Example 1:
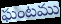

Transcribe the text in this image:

ఘంటము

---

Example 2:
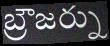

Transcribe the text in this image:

బ్రౌజర్ను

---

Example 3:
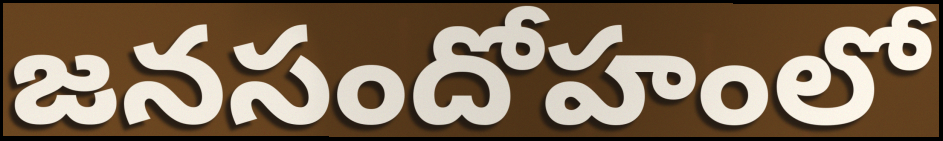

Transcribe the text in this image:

జనసందోహంలో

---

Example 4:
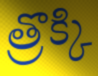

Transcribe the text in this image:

త్రొక్కి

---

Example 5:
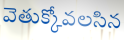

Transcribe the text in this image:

వెతుక్కోవలసిన